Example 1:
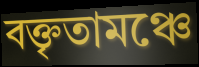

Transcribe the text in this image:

বক্তৃতামঞ্চে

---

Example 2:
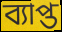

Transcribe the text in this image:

ব্যাপ্ত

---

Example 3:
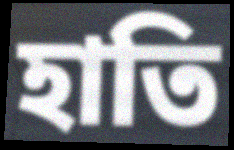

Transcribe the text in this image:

হাতি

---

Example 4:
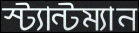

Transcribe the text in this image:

স্ট্যান্টম্যান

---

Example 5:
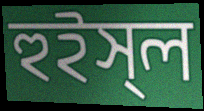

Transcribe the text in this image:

হুইস্‌ল